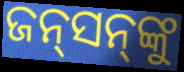
ଜନ୍‍ସନ୍‍ଙ୍କୁ